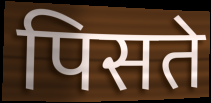
पिसते